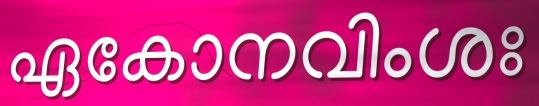
ഏകോനവിംശഃ